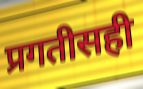
प्रगतीसही